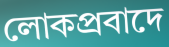
লোকপ্রবাদে